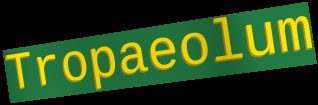
Tropaeolum